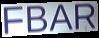
FBAR